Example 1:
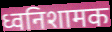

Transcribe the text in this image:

ध्वनिशामक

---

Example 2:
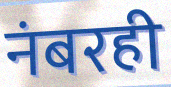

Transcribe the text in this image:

नंबरही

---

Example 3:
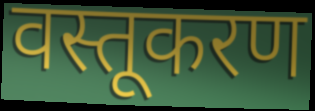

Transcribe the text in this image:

वस्तूकरण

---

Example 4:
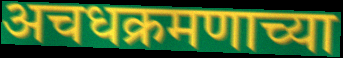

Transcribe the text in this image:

अचधक्रमणाच्या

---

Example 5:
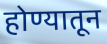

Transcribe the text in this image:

होण्यातून